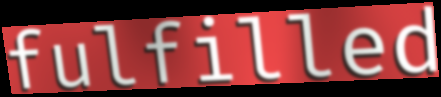
fulfilled